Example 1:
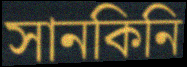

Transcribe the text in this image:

সানকিনি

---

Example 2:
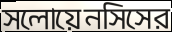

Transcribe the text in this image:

সলোয়েনসিসের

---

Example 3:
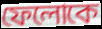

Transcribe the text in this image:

ফেলোকে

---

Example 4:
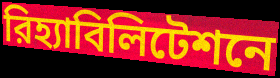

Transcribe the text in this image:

রিহ্যাবিলিটেশনে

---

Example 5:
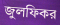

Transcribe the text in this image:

জুলফিকর